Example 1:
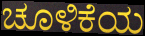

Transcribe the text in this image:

ಚೂಳಿಕೆಯ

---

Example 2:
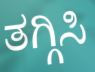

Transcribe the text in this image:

ತಗ್ಗಿಸಿ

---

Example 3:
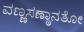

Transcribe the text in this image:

ವಣ್ಣಸಣ್ಠಾನತೋ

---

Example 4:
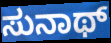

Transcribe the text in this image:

ಸುನಾಥ್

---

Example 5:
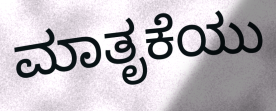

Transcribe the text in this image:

ಮಾತೃಕೆಯು